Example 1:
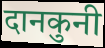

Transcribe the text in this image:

दानकुनी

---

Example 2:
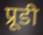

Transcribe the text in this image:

प्रूडी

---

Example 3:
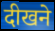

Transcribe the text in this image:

दीखने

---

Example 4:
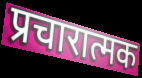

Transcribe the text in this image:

प्रचारात्मक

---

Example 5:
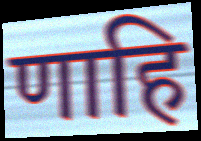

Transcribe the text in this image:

णाहि